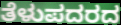
ತೆಳುಪದರದ